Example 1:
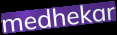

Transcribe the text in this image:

medhekar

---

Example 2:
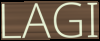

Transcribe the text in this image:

LAGI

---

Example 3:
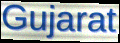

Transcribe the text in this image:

Gujarat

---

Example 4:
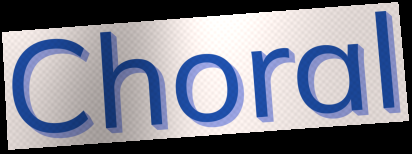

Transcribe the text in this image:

Choral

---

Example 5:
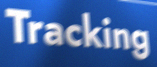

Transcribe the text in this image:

Tracking